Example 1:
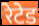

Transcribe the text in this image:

रेटेड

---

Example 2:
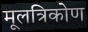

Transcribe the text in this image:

मूलत्रिकोण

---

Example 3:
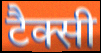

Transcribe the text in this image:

टैक्‍सी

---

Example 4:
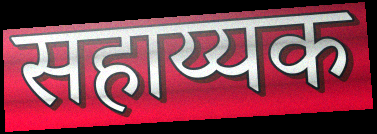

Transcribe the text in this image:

सहाय्यक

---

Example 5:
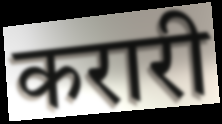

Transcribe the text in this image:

करारी